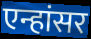
एन्हांसर